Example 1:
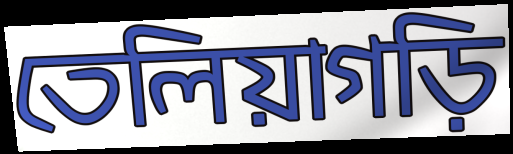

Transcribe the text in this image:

তেলিয়াগড়ি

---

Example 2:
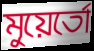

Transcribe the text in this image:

মুয়ের্তো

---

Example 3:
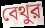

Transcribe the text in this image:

বেথুর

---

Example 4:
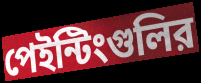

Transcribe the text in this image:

পেইন্টিংগুলির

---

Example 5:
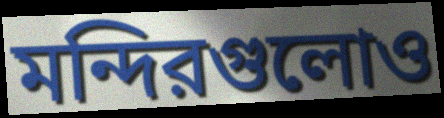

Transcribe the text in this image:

মন্দিরগুলোও